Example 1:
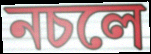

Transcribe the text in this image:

নচলে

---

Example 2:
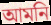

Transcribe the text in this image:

আমনি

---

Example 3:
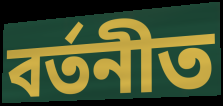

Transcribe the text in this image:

বৰ্তনীত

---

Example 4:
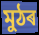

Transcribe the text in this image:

মুঠৰ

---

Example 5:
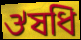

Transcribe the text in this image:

ঔষধি